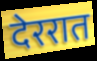
देररात